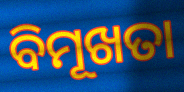
ବିମୂଖତା